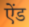
ऐंड